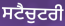
ਸਟੈਚੁਟਰੀ